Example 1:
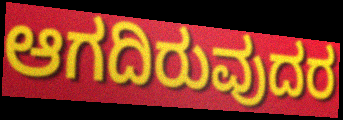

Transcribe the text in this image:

ಆಗದಿರುವುದರ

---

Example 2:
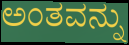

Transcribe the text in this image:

ಅಂತವನ್ನು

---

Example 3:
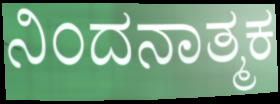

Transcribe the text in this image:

ನಿಂದನಾತ್ಮಕ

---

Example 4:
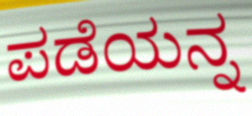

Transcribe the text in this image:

ಪಡೆಯನ್ನ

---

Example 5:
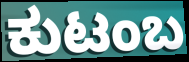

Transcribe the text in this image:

ಕುಟಂಬ